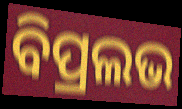
ବିପ୍ରଲଭ